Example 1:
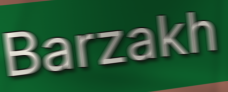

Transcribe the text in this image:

Barzakh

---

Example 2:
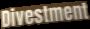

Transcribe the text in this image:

Divestment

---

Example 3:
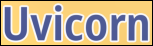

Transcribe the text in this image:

Uvicorn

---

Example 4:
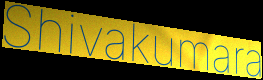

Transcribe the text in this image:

Shivakumara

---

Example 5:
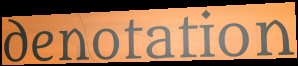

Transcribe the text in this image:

denotation